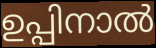
ഉപ്പിനാൽ